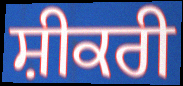
ਸ਼ੀਕਰੀ